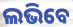
ଲଭିବେ